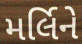
મર્લિને